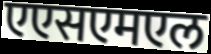
एएसएमएल